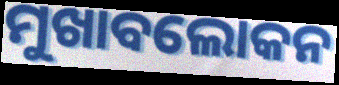
ମୁଖାବଲୋକନ